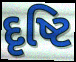
દૃષ્ટિ